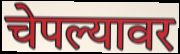
चेपल्यावर